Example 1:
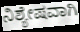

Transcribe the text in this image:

ನಿಶ್ಯೇಷವಾಗಿ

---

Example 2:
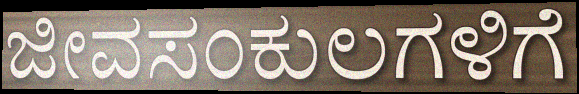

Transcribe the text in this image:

ಜೀವಸಂಕುಲಗಳಿಗೆ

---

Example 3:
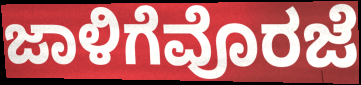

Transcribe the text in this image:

ಜಾಳಿಗೆವೊರಜೆ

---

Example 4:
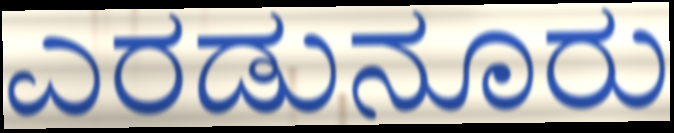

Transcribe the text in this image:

ಎರಡುನೂರು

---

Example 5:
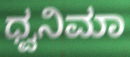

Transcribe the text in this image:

ಧ್ವನಿಮಾ